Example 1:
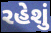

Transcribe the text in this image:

રહેશું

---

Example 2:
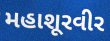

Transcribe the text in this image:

મહાશૂરવીર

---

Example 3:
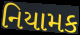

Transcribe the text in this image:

નિયામક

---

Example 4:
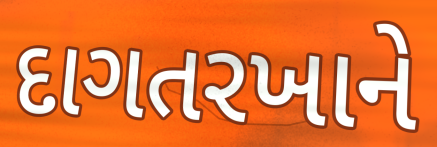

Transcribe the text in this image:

દાગતરખાને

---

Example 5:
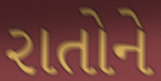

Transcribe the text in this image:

રાતોને